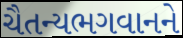
ચૈતન્યભગવાનને